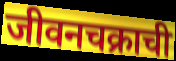
जीवनचक्राची